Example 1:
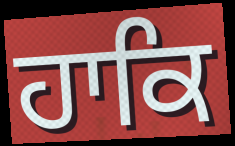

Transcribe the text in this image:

ਹਾਕਿ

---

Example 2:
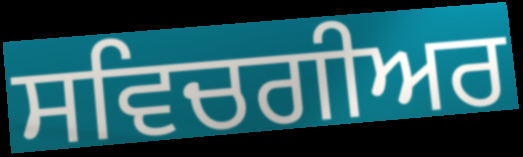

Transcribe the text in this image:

ਸਵਿਚਗੀਅਰ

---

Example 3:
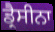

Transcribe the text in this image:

ਡ੍ਰੈਸੀਨਾ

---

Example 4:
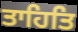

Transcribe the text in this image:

ਤਾਹਿਤਿ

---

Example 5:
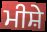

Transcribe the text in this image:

ਮੀਸ਼ੇ